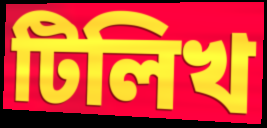
টিলিখ